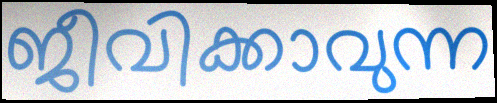
ജീവിക്കാവുന്ന